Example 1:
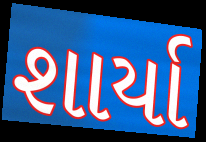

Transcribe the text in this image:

શાર્યા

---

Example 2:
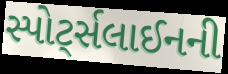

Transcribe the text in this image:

સ્પોર્ટ્સલાઈનની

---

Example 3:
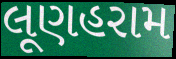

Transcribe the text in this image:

લૂણહરામ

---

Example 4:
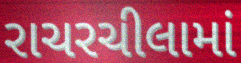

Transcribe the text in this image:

રાચરચીલામાં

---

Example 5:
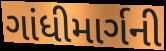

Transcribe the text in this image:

ગાંધીમાર્ગની